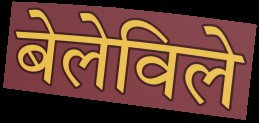
बेलेविले